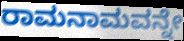
ರಾಮನಾಮವನ್ನೇ